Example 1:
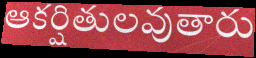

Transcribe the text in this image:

ఆకర్షితులవుతారు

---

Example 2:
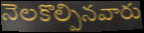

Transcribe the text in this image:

నెలకొల్పినవారు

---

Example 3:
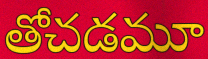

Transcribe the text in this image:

తోచడమూ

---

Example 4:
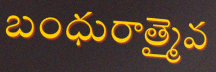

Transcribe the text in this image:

బంధురాత్మైవ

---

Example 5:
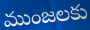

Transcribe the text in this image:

ముంజలకు